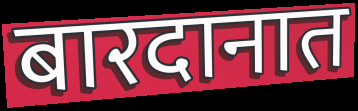
बारदानात